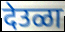
देउळा